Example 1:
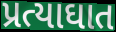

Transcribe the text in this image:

પ્રત્યાઘાત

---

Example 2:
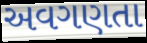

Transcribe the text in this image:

અવગણતા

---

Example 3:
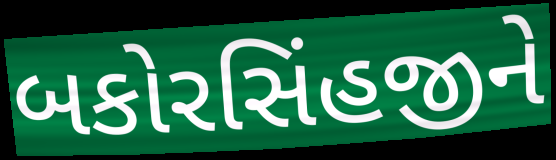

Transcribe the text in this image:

બકોરસિંહજીને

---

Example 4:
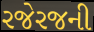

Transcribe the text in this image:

રજેરજની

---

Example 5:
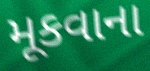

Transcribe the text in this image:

મૂકવાના